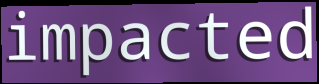
impacted